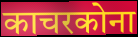
काचरकोना